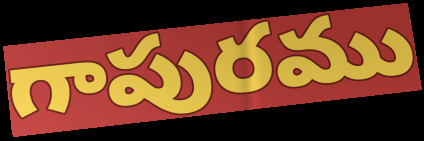
గాపురము